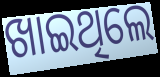
ଖାଇଥିଲେ